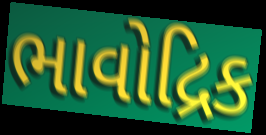
ભાવોદ્રિક